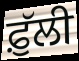
ਫ਼ੁੱਲੀ